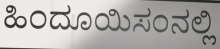
ಹಿಂದೂಯಿಸಂನಲ್ಲಿ